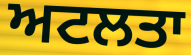
ਅਟਲਤਾ